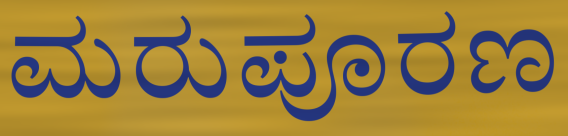
ಮರುಪೂರಣ